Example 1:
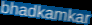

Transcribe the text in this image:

bhadkamkar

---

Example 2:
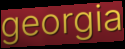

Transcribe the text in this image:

georgia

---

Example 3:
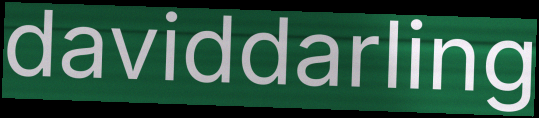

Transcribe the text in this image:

daviddarling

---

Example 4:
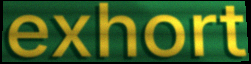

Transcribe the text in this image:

exhort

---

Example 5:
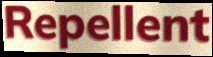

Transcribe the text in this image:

Repellent